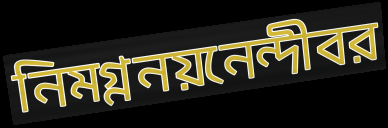
নিমগ্ননয়নেন্দীবর